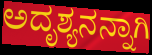
ಅದೃಶ್ಯನನ್ನಾಗಿ